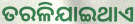
ତରଳିଯାଇଥାଏ